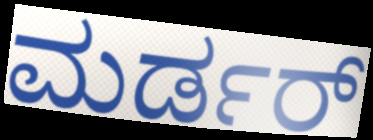
ಮರ್ಡರ್